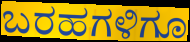
ಬರಹಗಳಿಗೂ